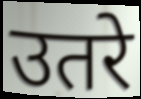
उतरे